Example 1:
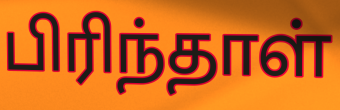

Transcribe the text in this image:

பிரிந்தாள்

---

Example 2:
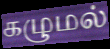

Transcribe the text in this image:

கழுமல்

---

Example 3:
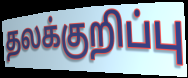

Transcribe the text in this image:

தலக்குறிப்பு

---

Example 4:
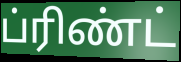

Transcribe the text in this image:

ப்ரிண்ட்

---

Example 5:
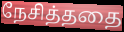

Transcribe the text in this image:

நேசித்ததை